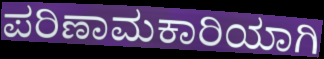
ಪರಿಣಾಮಕಾರಿಯಾಗಿ